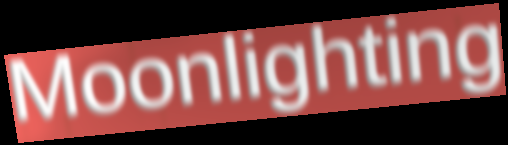
Moonlighting